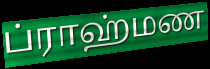
ப்ராஹ்மண